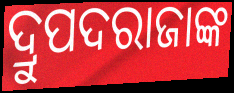
ଦ୍ରୁପଦରାଜାଙ୍କ